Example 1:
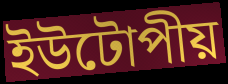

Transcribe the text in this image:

ইউটোপীয়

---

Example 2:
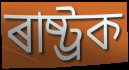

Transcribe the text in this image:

ৰাষ্ট্ৰক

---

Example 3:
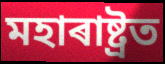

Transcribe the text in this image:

মহাৰাষ্ট্ৰত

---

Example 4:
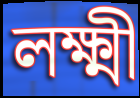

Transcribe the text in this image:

লক্ষ্মী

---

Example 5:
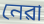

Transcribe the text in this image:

নেৱা